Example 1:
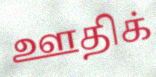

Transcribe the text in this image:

ஊதிக்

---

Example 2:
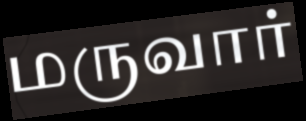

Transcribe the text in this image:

மருவார்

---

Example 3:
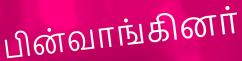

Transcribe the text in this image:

பின்வாங்கினர்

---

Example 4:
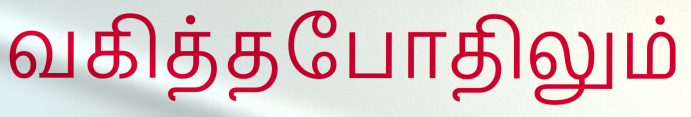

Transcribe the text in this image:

வகித்தபோதிலும்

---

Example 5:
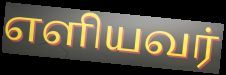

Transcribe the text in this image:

எளியவர்